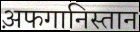
अ़फगानिस्तान